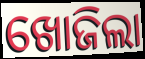
ଖୋଜିଲା